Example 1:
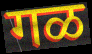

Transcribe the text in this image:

गळ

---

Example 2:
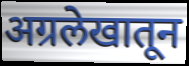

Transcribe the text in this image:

अग्रलेखातून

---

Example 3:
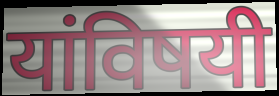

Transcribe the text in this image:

यांविषयी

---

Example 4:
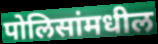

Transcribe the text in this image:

पोलिसांमधील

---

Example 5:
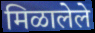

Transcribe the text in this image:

मिळालेले